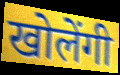
खोलेंगी